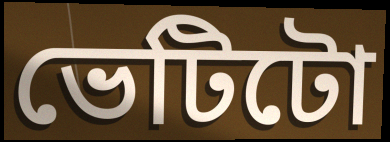
ভেটিটো